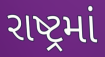
રાષ્ટ્રમાં